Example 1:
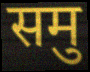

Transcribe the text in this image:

समु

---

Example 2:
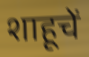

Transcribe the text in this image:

शाहूचें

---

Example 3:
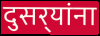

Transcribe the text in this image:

दुसर्‍यांना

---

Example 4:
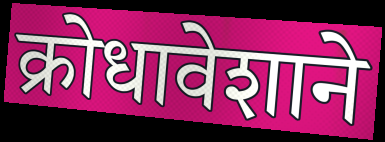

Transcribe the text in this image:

क्रोधावेशाने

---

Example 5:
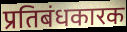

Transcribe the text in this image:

प्रतिबंधकारक